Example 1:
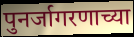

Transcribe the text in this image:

पुनर्जागरणाच्या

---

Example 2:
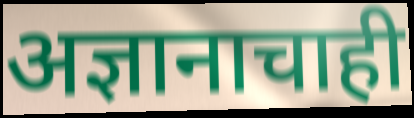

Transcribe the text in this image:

अज्ञानाचाही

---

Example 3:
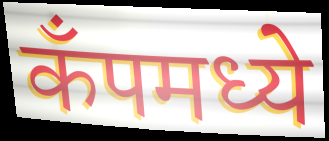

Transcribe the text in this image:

कॅंपमध्ये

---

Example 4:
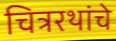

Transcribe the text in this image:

चित्ररथांचे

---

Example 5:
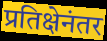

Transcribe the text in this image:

प्रतिक्षेनंतर